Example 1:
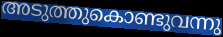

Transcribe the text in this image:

അടുത്തുകൊണ്ടുവന്നു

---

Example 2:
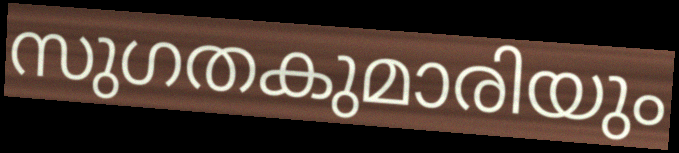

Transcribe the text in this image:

സുഗതകുമാരിയും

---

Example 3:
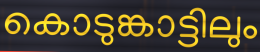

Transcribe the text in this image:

കൊടുങ്കാട്ടിലും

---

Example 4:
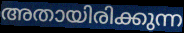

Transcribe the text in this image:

അതായിരിക്കുന്ന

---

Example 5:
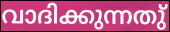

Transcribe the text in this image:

വാദിക്കുന്നതു്